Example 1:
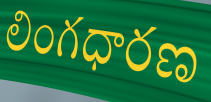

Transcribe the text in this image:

లింగధారణ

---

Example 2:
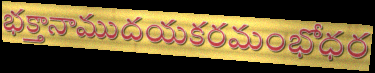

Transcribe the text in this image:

భక్తానాముదయకరమంభోధర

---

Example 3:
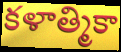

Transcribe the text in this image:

కళాత్మికా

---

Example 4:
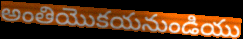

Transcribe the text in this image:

అంతియొకయనుండియు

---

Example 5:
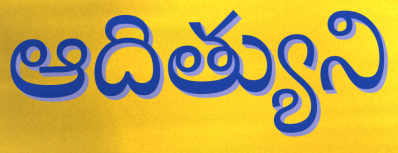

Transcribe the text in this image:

ఆదిత్యుని